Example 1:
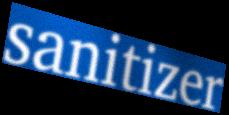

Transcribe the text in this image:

sanitizer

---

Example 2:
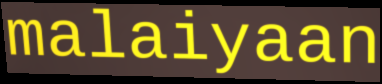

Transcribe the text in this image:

malaiyaan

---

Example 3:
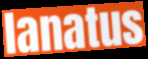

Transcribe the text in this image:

lanatus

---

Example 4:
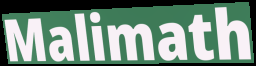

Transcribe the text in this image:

Malimath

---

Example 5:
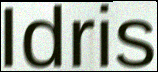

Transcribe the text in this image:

Idris